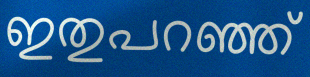
ഇതുപറഞ്ഞ്